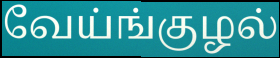
வேய்ங்குழல்